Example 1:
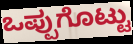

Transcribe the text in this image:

ಒಪ್ಪುಗೊಟ್ಟು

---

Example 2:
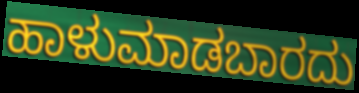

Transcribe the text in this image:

ಹಾಳುಮಾಡಬಾರದು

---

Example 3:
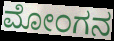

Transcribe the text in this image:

ಮೋಂಗನ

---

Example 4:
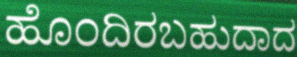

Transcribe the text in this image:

ಹೊಂದಿರಬಹುದಾದ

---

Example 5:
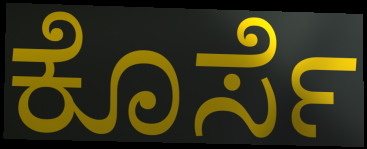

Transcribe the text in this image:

ಕೊರ್ಸೆ